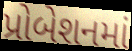
પ્રોબેશનમાં